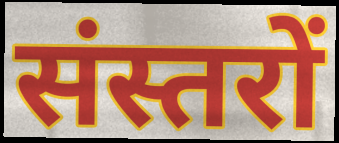
संस्तरों